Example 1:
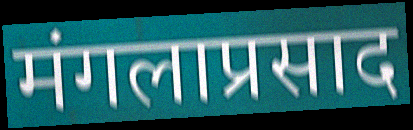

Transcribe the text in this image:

मंगलाप्रसाद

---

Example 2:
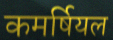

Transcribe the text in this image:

कमर्षियल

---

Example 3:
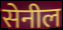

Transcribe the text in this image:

सेनील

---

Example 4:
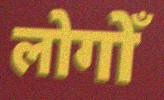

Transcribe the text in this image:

लोगोँ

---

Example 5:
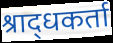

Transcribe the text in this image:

श्राद्धकर्ता